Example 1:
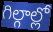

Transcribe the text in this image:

గిల్గాల్లో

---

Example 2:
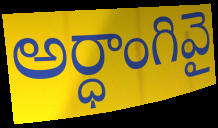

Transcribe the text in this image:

అర్ధాంగివై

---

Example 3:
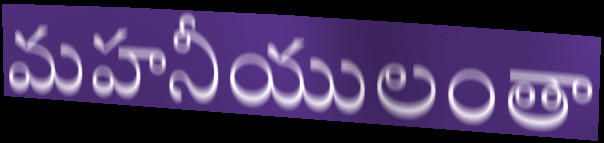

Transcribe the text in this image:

మహనీయులంతా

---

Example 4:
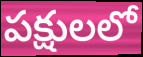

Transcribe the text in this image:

పక్షులలో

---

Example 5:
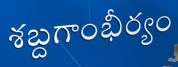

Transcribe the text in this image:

శబ్దగాంభీర్యం